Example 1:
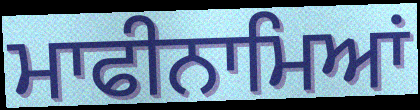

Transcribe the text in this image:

ਮਾਫੀਨਾਮਿਆਂ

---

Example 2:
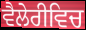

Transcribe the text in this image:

ਵੈਲੇਰੀਵਿਚ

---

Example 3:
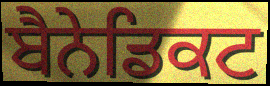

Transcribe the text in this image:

ਬੈਨੇਡਿਕਟ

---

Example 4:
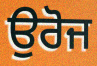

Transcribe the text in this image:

ਉਰੋਜ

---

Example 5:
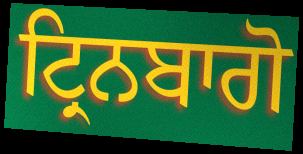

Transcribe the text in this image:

ਟ੍ਰਿਨਬਾਗੋ